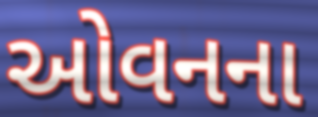
ઓવનના